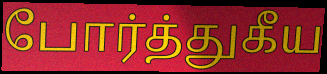
போர்த்துகீய